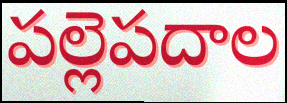
పల్లెపదాల